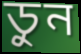
ডুন